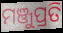
ମଞ୍ଜୁପ୍ରତି